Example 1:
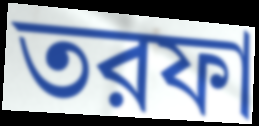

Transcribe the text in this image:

তরফা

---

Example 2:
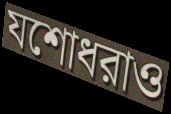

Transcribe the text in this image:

যশোধরাও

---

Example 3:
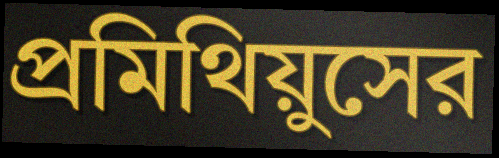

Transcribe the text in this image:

প্রমিথিয়ুসের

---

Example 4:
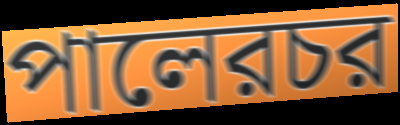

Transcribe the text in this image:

পালেরচর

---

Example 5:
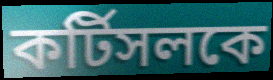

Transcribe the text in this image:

কর্টিসলকে